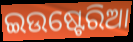
ଇଉଷ୍ଟେରିଆ